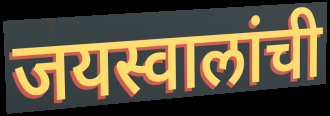
जयस्वालांची